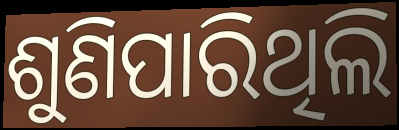
ଶୁଣିପାରିଥିଲି